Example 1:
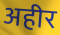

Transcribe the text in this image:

अहीर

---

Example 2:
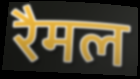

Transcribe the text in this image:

रैमल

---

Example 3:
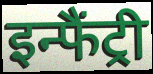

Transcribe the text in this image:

इन्फैंट्री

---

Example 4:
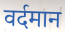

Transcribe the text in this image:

वर्दमान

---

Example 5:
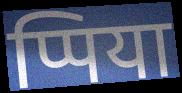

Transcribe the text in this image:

प्पिया